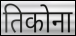
तिकोना